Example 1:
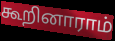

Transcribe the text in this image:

கூறினாராம்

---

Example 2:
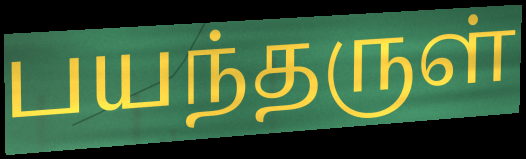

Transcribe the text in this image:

பயந்தருள்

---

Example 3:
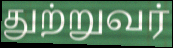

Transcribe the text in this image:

துற்றுவர்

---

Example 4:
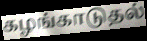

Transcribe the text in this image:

கழங்காடுதல்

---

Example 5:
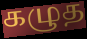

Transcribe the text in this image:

கழுத